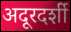
अदूरदर्शी